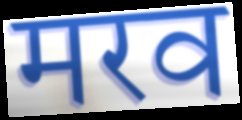
मरव